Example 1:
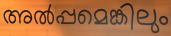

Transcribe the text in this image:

അൽപ്പമെങ്കിലും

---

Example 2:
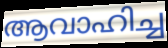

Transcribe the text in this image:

ആവാഹിച്ച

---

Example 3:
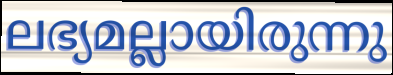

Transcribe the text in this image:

ലഭ്യമല്ലായിരുന്നു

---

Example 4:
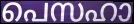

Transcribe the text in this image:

പെസഹാ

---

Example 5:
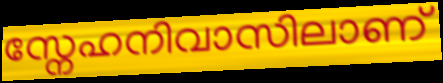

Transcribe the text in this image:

സ്നേഹനിവാസിലാണ്